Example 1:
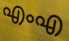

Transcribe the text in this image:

എംഎ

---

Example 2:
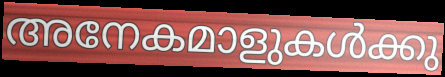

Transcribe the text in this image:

അനേകമാളുകൾക്കു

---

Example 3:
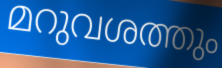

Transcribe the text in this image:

മറുവശത്തും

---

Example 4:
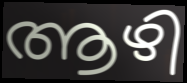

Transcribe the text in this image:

ആഴി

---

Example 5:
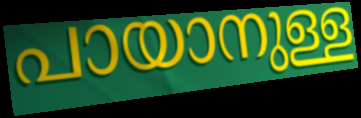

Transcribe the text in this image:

പായാനുള്ള